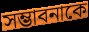
সম্ভাবনাকে